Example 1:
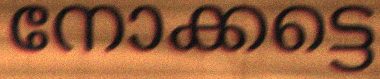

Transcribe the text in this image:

നോക്കട്ടെ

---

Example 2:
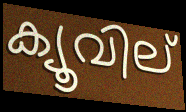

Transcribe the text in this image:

ക്യൂവില്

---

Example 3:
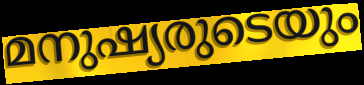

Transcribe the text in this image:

മനുഷ്യരുടെയും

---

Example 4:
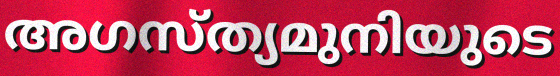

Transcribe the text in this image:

അഗസ്ത്യമുനിയുടെ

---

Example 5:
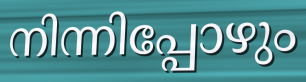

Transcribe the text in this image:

നിന്നിപ്പോഴും